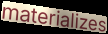
materializes